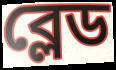
ব্লেড